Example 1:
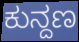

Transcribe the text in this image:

ಕುನ್ದಣ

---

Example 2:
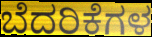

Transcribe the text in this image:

ಬೆದರಿಕೆಗಳ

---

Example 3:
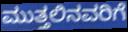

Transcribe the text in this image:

ಮುತ್ತಲಿನವರಿಗೆ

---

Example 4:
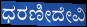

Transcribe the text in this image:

ಧರಣೀದೇವಿ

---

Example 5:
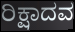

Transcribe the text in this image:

ರಿಕ್ಷಾದವ